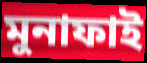
মুনাফাই